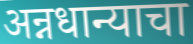
अन्नधान्याचा